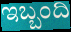
ಇಬ್ಬಂದಿ